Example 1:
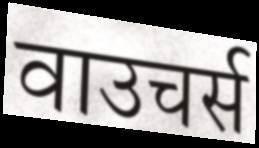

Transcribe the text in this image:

वाउचर्स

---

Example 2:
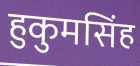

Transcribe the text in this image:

हुकुमसिंह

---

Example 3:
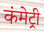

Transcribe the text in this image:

कंमेट्री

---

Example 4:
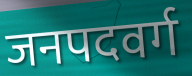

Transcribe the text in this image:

जनपदवर्ग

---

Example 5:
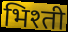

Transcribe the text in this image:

भिश्ती